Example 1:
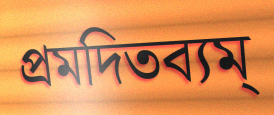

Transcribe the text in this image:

প্রমদিতব্যম্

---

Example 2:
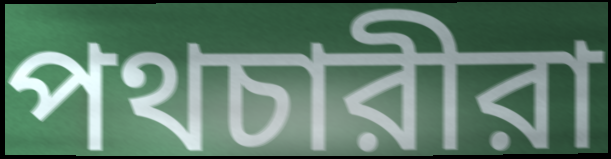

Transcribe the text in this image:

পথচারীরা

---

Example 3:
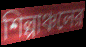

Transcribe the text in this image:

শিল্পাঞ্চলের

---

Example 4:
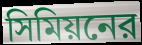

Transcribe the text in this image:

সিমিয়নের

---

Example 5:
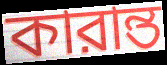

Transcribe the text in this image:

কারান্ত